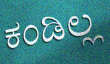
ಕಂಡಿಲ್ಲ